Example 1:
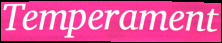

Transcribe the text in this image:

Temperament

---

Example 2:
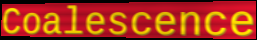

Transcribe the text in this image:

Coalescence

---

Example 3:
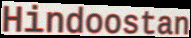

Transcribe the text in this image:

Hindoostan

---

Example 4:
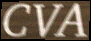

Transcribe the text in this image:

CVA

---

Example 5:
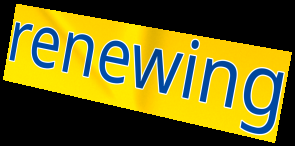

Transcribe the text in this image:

renewing